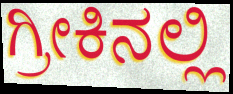
ಗ್ರೀಕಿನಲ್ಲಿ